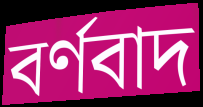
বর্ণবাদ